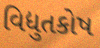
વિદ્યુતકોષ